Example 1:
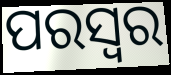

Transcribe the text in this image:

ପରସ୍ୱର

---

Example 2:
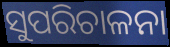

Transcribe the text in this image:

ସୁପରିଚାଳନା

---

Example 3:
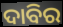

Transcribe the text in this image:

ଦାବିର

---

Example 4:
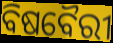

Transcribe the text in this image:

ବିଷବୈରୀ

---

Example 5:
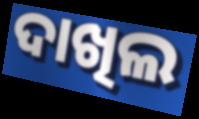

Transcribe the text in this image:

ଦାଖିଲ